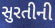
સુરતીની